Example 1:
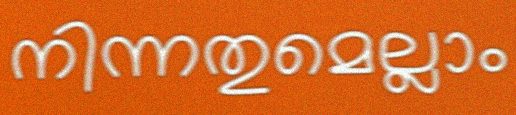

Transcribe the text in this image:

നിന്നതുമെല്ലാം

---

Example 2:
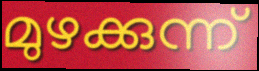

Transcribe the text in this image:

മുഴക്കുന്ന്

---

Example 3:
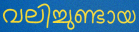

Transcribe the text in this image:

വലിച്ചുണ്ടായ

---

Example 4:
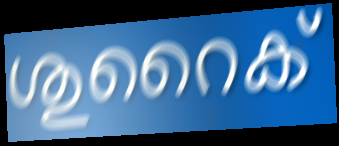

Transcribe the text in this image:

ശുറൈക്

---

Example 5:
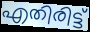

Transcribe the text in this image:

എതിരിട്ട്